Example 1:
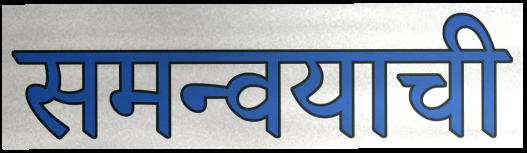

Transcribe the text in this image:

समन्वयाची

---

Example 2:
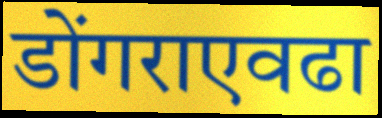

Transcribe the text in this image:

डोंगराएवढा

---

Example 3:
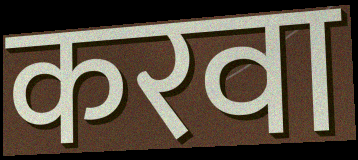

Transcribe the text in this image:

करवा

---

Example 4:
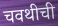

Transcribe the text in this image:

चवथीची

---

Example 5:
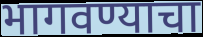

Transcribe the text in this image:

भागवण्याचा